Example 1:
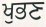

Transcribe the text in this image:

ਖੁਭਣ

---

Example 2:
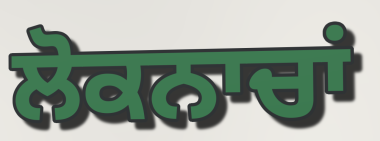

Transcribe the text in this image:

ਲੋਕਨਾਚਾਂ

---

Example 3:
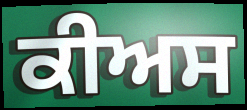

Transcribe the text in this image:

ਕੀਅਸ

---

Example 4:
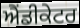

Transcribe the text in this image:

ਐਂਡੀਕੇਟਰ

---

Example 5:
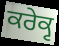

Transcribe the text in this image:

ਕਰੇਕ੍ਟ